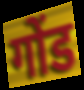
गोंड